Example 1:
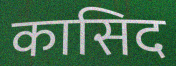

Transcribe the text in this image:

कासिद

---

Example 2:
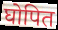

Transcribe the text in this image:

घोपित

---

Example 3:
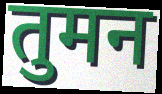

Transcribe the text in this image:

तुमन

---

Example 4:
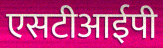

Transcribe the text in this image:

एसटीआईपी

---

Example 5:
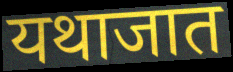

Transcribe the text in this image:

यथाजात